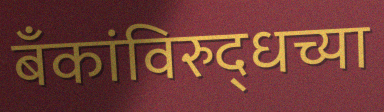
बँकांविरुद्धच्या